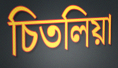
চিতলিয়া